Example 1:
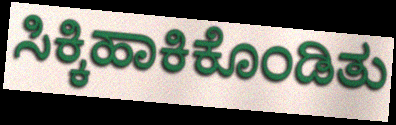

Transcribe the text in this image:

ಸಿಕ್ಕಿಹಾಕಿಕೊಂಡಿತು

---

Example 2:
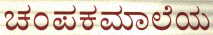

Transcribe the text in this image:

ಚಂಪಕಮಾಲೆಯ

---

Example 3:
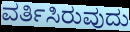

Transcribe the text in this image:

ವರ್ತಿಸಿರುವುದು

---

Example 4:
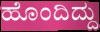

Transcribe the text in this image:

ಹೊಂದಿದ್ದು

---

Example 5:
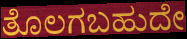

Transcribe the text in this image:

ತೊಲಗಬಹುದೇ